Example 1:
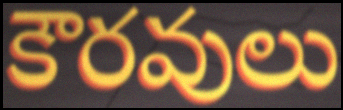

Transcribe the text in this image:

కౌరవులు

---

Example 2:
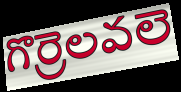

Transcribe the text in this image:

గొర్రెలవలె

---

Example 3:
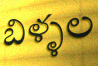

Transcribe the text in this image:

బిళ్ళల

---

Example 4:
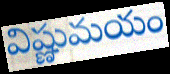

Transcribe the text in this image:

విష్ణుమయం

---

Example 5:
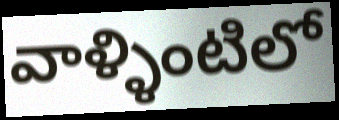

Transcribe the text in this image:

వాళ్ళింటిలో